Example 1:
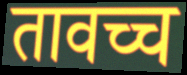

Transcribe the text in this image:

तावच्च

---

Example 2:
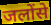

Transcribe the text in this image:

जलोंसे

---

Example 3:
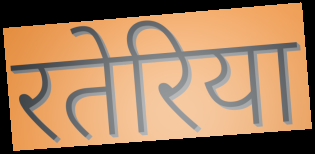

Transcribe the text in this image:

रतेरिया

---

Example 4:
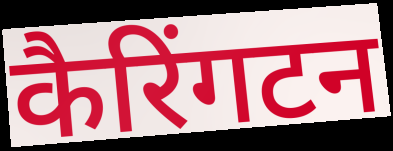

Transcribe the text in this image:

कैरिंगटन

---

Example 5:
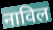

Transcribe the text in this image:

नाविल